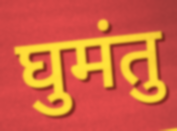
घुमंतु